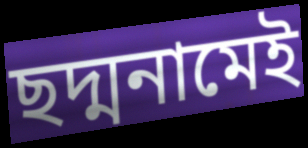
ছদ্মনামেই